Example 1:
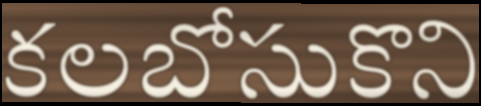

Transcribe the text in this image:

కలబోసుకొని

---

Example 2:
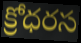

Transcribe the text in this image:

క్రోధరస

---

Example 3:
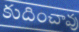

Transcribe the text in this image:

కుదించావు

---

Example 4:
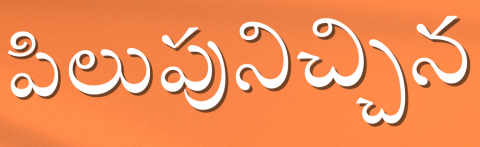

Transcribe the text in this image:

పిలుపునిచ్చిన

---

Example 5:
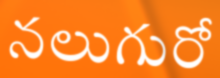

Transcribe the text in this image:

నలుగురో